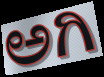
ಅಗಿ